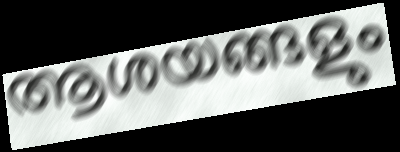
ആശയങ്ങളും